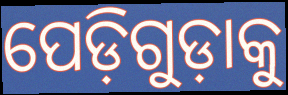
ପେଡ଼ିଗୁଡ଼ାକୁ